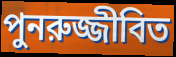
পুনরুজ্জীবিত